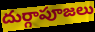
దుర్గాపూజలు